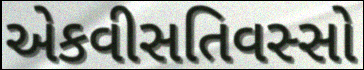
એકવીસતિવસ્સો